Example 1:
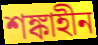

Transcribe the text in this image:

শঙ্কাহীন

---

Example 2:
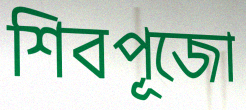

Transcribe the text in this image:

শিবপূজো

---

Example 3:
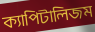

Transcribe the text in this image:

ক্যাপিটালিজম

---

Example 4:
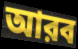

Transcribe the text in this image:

আরব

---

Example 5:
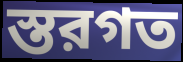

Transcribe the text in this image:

স্তরগত